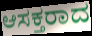
ಆಸಕ್ತರಾದ